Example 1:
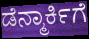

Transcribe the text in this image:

ಡೆನ್ಮಾರ್ಕಿಗೆ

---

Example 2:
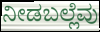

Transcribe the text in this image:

ನೀಡಬಲ್ಲೆವು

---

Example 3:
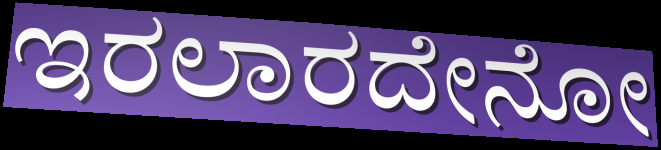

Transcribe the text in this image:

ಇರಲಾರದೇನೋ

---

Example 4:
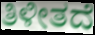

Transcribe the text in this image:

ತಿಳೀತದೆ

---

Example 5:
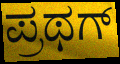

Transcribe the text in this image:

ಪ್ರಥಗ್